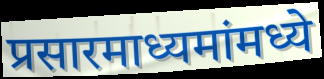
प्रसारमाध्यमांमध्ये